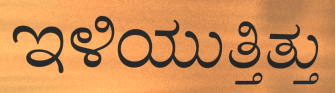
ಇಳಿಯುತ್ತಿತ್ತು